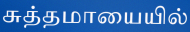
சுத்தமாயையில்